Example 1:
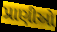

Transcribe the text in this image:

પ્રાણીઓ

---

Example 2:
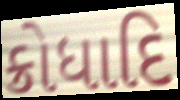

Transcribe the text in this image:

ક્રોધાદિ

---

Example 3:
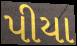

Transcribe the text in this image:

પીયા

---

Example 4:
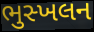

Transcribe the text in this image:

ભુસ્ખલન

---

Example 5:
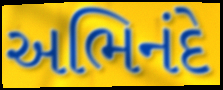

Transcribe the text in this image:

અભિનંદે